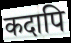
कदापि